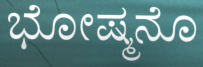
ಭೋಷ್ಮನೊ